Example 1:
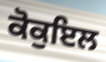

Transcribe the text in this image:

ਕੋਕੁਇਲ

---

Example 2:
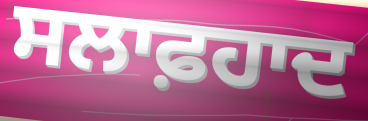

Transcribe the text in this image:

ਸਲਾਫ਼ਹਾਦ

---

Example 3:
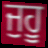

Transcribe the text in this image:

ਜੁਹੂ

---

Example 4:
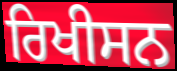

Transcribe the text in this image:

ਰਿਖੀਸਨ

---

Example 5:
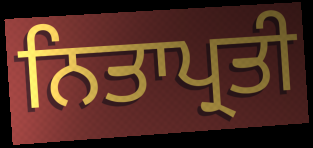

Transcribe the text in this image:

ਨਿਤਾਪ੍ਰਤੀ